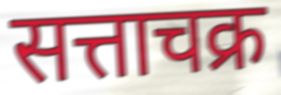
सत्ताचक्र